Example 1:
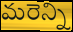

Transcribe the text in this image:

మరెన్ని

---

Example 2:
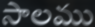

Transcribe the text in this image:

సాలము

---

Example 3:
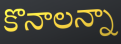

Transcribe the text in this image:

కొనాలన్నా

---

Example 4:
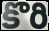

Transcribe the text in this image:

కొరి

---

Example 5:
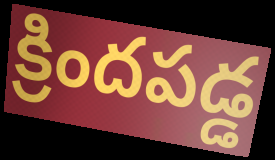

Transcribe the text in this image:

క్రిందపడ్డ